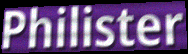
Philister